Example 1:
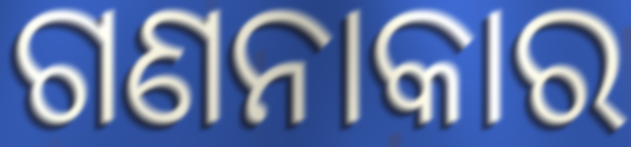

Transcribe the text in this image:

ଗଣନାକାର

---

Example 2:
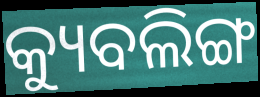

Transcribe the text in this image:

କ୍ୟୁବଲିଙ୍ଗ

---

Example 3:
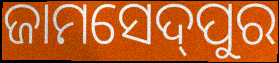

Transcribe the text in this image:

ଜାମସେଦ୍‌ପୁର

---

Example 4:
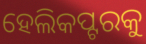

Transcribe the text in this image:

ହେଲିକପ୍ଟରକୁ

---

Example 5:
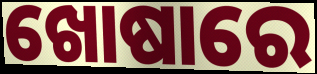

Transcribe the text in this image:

ଖୋଷାରେ